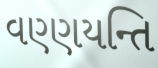
વણ્ણયન્તિ